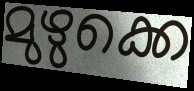
മുഴുക്കെ